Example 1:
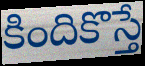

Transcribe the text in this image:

కిందికొస్తే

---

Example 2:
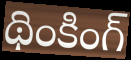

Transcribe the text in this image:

థింకింగ్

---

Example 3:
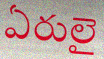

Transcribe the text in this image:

ఏరులై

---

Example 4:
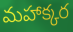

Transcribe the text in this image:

మహాక్కర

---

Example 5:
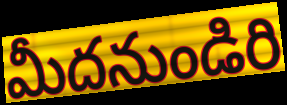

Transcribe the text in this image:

మీదనుండిరి